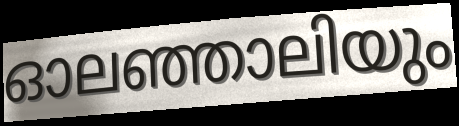
ഓലഞ്ഞാലിയും